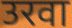
उरवा